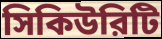
সিকিউরিটি